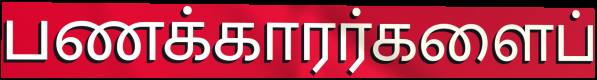
பணக்காரர்களைப்